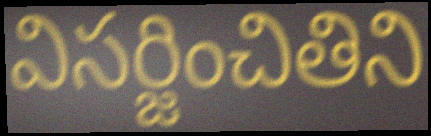
విసర్జించితిని